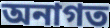
অনাগত